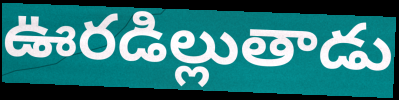
ఊరడిల్లుతాడు